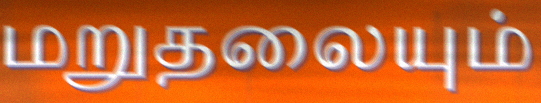
மறுதலையும்